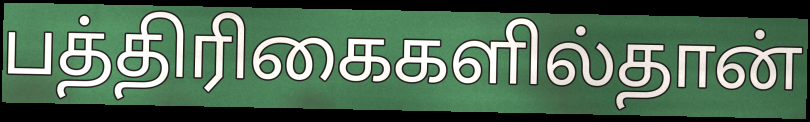
பத்திரிகைகளில்தான்